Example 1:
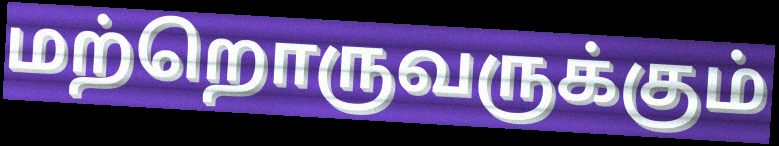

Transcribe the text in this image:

மற்றொருவருக்கும்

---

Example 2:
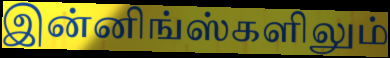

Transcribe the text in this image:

இன்னிங்ஸ்களிலும்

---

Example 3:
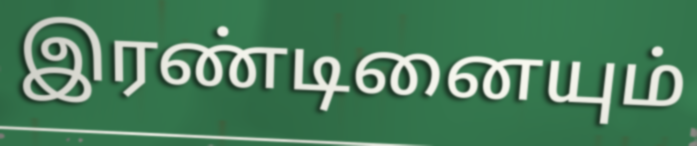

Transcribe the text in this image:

இரண்டினையும்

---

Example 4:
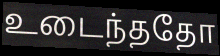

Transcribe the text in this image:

உடைந்ததோ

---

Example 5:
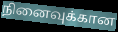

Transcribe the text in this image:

நினைவுக்கான